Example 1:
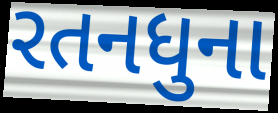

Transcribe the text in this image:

રતનધુના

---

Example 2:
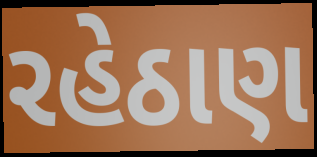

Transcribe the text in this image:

રહેઠાણ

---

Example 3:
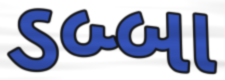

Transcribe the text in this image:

ડબ્બા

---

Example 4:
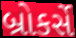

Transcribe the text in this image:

બ્રોકર્સે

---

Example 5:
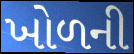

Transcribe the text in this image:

ખોળની